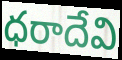
ధరాదేవి